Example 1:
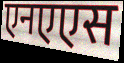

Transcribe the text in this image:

एनएएस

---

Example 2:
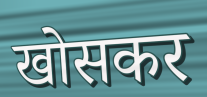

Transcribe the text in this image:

खोसकर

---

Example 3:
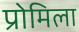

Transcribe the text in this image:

प्रोमिला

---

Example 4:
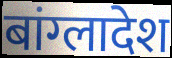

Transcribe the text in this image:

बांग्‍लादेश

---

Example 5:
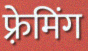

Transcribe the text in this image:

फ़्रेमिंग